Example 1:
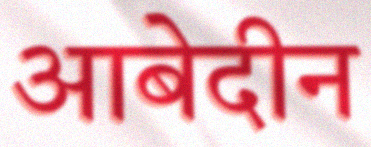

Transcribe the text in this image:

आबेदीन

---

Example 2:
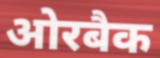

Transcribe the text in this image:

ओरबैक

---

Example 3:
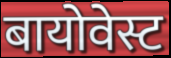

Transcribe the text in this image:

बायोवेस्ट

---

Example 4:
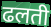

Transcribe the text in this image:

ढलती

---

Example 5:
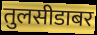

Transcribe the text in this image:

तुलसीडाबर